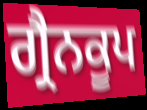
ਗ੍ਰੈਨਕੂਪ